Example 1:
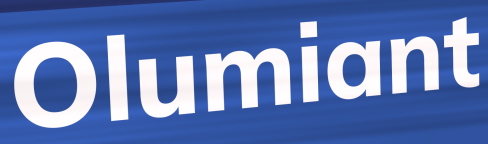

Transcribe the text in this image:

Olumiant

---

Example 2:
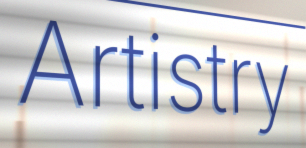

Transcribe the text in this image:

Artistry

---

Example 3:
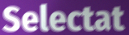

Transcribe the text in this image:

Selectat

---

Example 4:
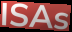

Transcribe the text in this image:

ISAs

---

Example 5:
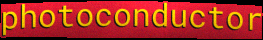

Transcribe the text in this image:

photoconductor